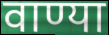
वाण्या